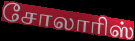
சோலாரிஸ்